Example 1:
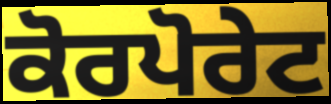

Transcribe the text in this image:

ਕੋਰਪੋਰੇਟ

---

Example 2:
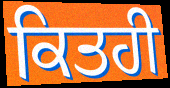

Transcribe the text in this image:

ਕਿਤਹੀ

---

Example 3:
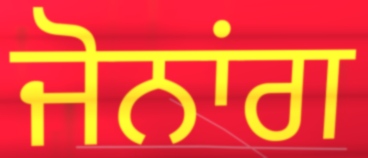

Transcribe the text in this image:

ਜੋਨਾਂਗ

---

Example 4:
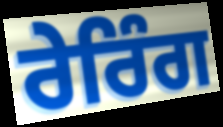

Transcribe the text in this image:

ਰੇਰਿੰਗ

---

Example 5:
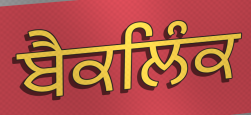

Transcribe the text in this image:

ਬੈਕਲਿੰਕ